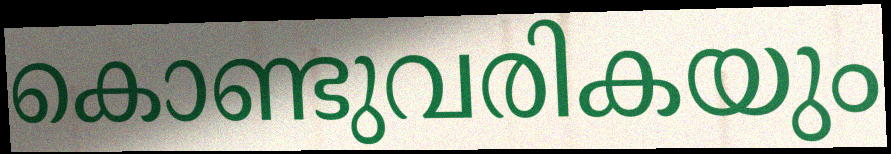
കൊണ്ടുവരികയും